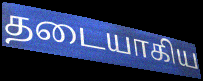
தடையாகிய